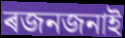
ৰজনজনাই